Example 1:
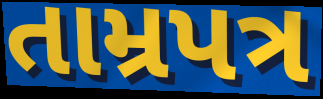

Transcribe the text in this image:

તામ્રપત્ર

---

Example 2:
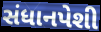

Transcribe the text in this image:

સંધાનપેશી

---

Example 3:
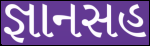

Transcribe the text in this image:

જ્ઞાનસહ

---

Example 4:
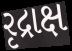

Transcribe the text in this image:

રૃદ્રાક્ષ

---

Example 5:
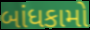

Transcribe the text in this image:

બાંધકામો